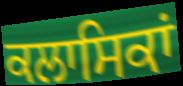
ਕਲਾਸਿਕਾਂ